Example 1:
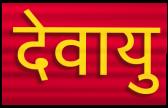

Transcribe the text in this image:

देवायु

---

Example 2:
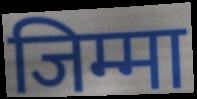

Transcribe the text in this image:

जिम्‍मा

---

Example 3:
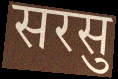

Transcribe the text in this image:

सरसु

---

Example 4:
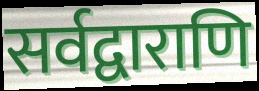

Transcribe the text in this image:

सर्वद्वाराणि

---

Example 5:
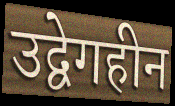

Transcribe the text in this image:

उद्वेगहीन